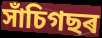
সাঁচিগছৰ